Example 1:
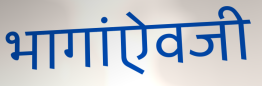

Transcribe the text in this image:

भागांऐवजी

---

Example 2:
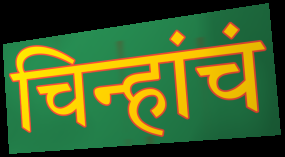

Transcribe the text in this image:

चिन्हांचं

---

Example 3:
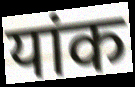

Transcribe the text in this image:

यांक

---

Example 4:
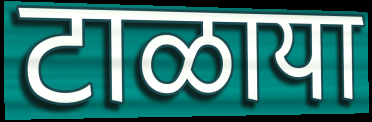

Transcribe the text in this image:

टाळाया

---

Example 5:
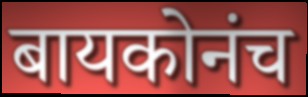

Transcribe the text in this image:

बायकोनंच